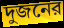
দুজনের